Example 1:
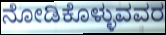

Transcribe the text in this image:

ನೋಡಿಕೊಳ್ಳುವವರ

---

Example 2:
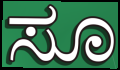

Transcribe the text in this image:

ಸೂ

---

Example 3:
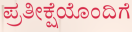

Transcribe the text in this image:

ಪ್ರತೀಕ್ಷೆಯೊಂದಿಗೆ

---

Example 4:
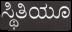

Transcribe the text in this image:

ಸ್ಥಿತಿಯೂ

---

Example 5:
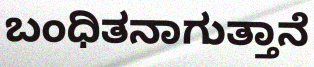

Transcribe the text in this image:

ಬಂಧಿತನಾಗುತ್ತಾನೆ